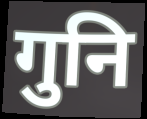
गुनि